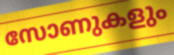
സോണുകളും